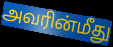
அவரின்மீது